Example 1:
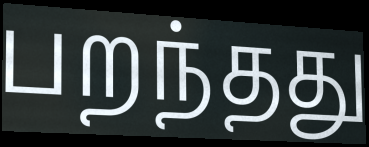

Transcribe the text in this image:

பறந்தது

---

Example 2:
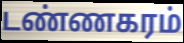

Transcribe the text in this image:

டண்ணகரம்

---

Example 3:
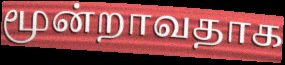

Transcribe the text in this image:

மூன்றாவதாக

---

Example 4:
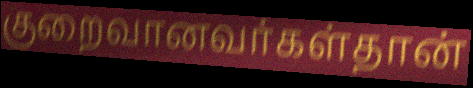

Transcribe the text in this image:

குறைவானவர்கள்தான்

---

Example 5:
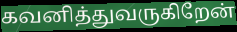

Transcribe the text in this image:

கவனித்துவருகிறேன்